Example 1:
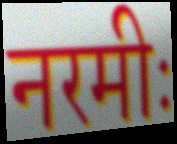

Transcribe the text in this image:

नरमीः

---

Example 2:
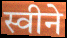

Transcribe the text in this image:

स्वीने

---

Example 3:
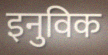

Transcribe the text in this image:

इनुविक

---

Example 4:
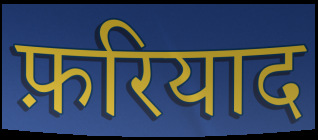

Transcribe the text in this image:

फ़रियाद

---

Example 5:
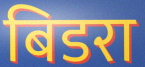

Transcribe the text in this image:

बिडरा